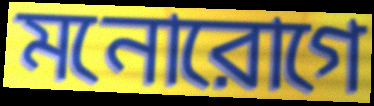
মনোরোগে